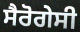
ਸੈਰੋਗੇਸੀ